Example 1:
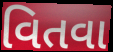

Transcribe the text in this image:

વિતવા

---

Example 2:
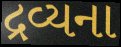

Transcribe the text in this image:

દ્રવ્યના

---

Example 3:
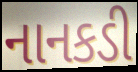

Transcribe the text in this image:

નાનકડી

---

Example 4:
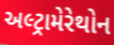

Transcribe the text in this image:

અલ્ટ્રામેરેથોન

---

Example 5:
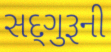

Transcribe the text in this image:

સદ્‌ગુરૂની